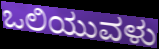
ಒಲಿಯುವಳು